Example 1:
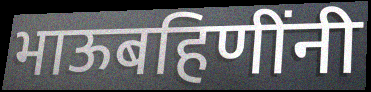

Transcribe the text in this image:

भाऊबहिणींनी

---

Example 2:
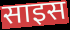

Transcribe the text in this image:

साइस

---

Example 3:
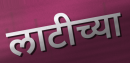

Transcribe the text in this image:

लाटीच्या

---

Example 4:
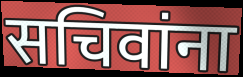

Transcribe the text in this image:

सचिवांना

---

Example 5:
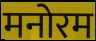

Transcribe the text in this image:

मनोरम